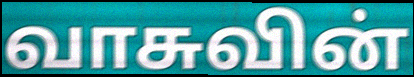
வாசுவின்